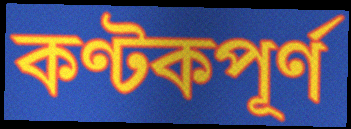
কণ্টকপূর্ণ